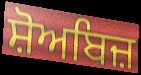
ਸ਼ੋਅਬਿਜ਼